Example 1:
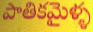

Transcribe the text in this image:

పాతికమైళ్ళ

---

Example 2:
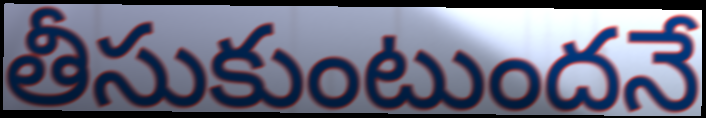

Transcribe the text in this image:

తీసుకుంటుందనే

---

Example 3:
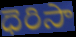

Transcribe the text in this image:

ధెరిసా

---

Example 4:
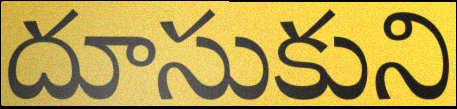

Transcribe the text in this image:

దూసుకుని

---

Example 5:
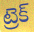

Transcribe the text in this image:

ట్రెక్